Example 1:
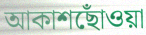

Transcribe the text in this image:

আকাশছোঁওয়া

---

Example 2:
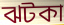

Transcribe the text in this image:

ঝটকা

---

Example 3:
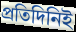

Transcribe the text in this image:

প্রতিদিনিই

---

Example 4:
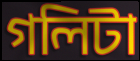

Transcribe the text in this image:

গলিটা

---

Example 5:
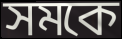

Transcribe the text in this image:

সমকে